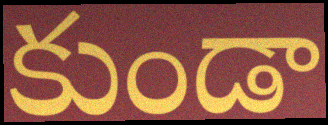
కుండా